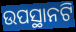
ଉପସ୍ଥାନଟି